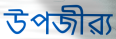
উপজীৱ্য